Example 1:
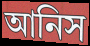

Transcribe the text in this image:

আনিস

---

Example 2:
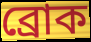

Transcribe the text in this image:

ব্রোক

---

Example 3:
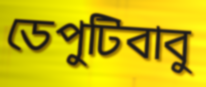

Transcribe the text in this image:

ডেপুটিবাবু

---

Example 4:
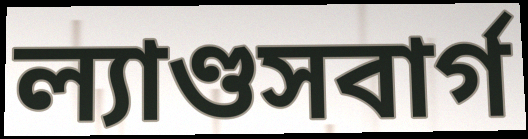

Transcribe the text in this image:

ল্যাণ্ডসবার্গ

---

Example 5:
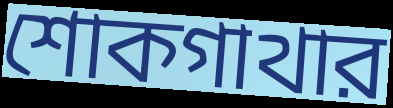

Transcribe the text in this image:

শোকগাথার